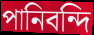
পানিবন্দি